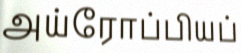
அய்ரோப்பியப்